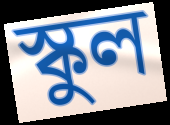
স্কুল